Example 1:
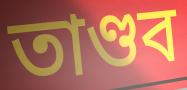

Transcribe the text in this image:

তাণ্ডব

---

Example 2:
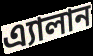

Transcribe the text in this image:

এ্যালান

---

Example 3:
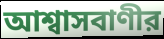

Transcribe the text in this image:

আশ্বাসবাণীর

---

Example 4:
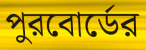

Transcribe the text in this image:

পুরবোর্ডের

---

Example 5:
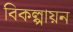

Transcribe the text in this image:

বিকল্পায়ন